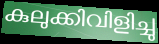
കുലുക്കിവിളിച്ചു